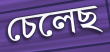
চেলেছ